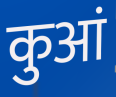
कुआं